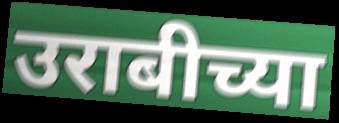
उराबीच्या